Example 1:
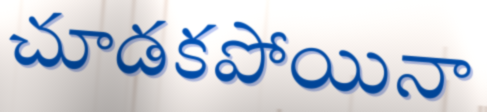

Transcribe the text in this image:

చూడకపోయినా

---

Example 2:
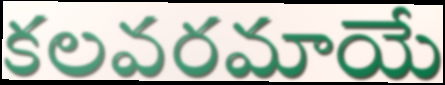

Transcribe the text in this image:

కలవరమాయే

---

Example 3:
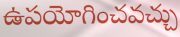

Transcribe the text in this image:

ఉపయోగించవచ్చు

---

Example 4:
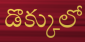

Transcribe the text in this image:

డొక్కులో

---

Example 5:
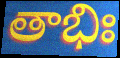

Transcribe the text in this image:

తాభిః